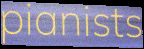
pianists